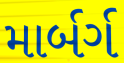
માર્બર્ગ